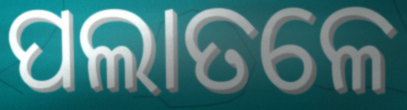
ପଲାତଳେ